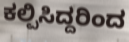
ಕಲ್ಪಿಸಿದ್ದರಿಂದ